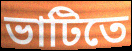
ভাটিতে